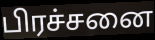
பிரச்சனை